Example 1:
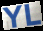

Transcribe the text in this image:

YL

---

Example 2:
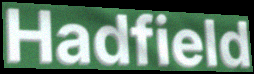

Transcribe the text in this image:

Hadfield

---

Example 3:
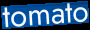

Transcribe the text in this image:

tomato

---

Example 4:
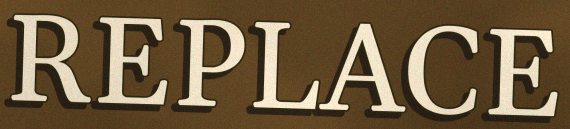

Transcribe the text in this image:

REPLACE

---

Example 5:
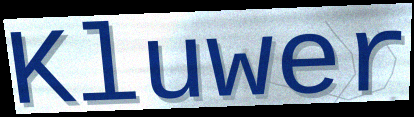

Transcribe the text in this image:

Kluwer